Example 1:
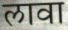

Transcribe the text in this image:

लावा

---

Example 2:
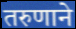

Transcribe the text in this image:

तरुणाने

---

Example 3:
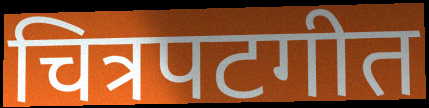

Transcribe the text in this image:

चित्रपटगीत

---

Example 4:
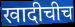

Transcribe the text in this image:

खादीचीच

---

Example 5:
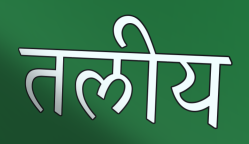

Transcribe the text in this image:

तलीय